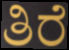
ತಿರೆ